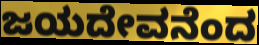
ಜಯದೇವನೆಂದ